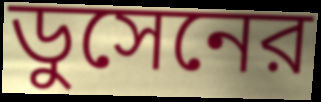
ডুসেনের